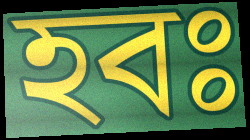
হবঃ